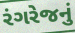
રંગરેજનું